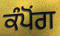
ਕੰਪੋਂਗ